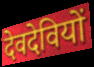
देवदेवियों